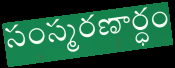
సంస్మరణార్ధం